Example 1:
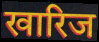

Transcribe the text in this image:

खारिज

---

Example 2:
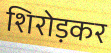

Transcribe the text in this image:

शिरोड़कर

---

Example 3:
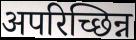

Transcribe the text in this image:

अपरिच्छिन्न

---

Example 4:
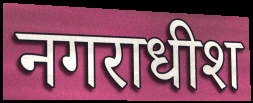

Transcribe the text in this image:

नगराधीश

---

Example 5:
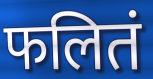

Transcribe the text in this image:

फलितं